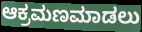
ಆಕ್ರಮಣಮಾಡಲು